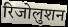
रिजोलुशन